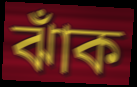
ঝাঁক